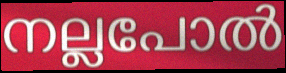
നല്ലപോൽ